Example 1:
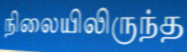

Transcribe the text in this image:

நிலையிலிருந்த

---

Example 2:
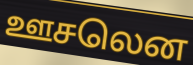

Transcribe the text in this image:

ஊசலென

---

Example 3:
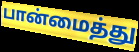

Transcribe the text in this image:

பான்மைத்து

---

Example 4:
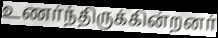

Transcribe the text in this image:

உணர்ந்திருக்கின்றனர்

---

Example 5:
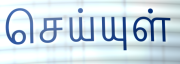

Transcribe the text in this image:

செய்யுள்